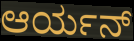
ಆರ್ಯನ್